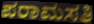
ಪರಾಮಸತಿ